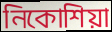
নিকোশিয়া